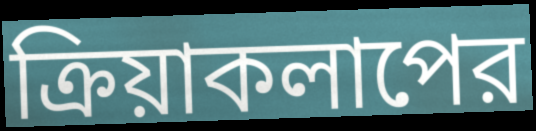
ক্রিয়াকলাপের